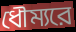
ধৌম্যরে